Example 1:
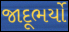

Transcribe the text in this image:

જાદૂભર્યો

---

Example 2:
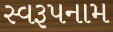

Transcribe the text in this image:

સ્વરૂપનામ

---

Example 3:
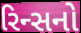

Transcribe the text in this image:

રિન્સનો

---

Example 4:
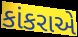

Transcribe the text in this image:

કાંકરાએ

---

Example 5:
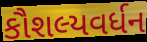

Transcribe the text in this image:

કૌશલ્યવર્ધન